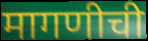
मागणीची